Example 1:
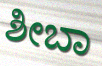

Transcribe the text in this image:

ಶೀಬಾ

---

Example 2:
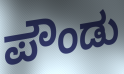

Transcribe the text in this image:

ಪೌಂಡು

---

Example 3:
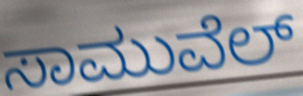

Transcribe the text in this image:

ಸಾಮುವೆಲ್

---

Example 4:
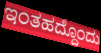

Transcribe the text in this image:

ಇಂತಹದ್ದೊಂದು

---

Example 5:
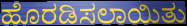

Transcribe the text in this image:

ಹೊರಡಿಸಲಾಯಿತು